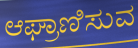
ಆಘ್ರಾಣಿಸುವ